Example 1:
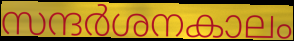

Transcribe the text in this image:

സന്ദർശനകാലം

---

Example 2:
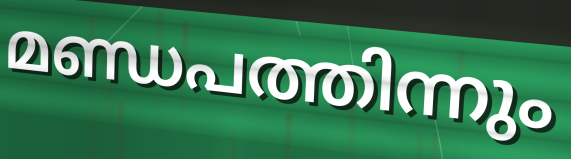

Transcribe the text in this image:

മണ്ഡപത്തിന്നും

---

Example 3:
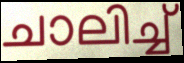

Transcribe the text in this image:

ചാലിച്ച്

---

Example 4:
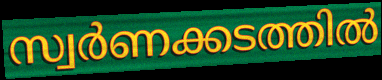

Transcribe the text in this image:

സ്വർണക്കടത്തിൽ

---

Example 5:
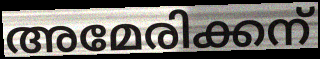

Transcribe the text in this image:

അമേരിക്കന്